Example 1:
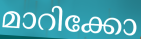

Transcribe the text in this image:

മാറിക്കോ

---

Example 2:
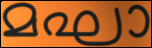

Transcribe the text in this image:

മഘാ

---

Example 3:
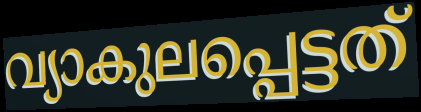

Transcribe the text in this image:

വ്യാകുലപ്പെട്ടത്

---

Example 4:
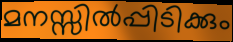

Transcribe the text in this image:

മനസ്സിൽപ്പിടിക്കും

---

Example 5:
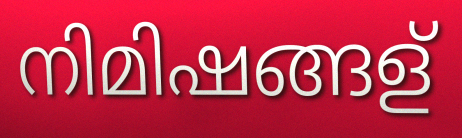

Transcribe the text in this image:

നിമിഷങ്ങള്